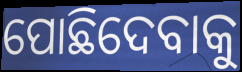
ପୋଛିଦେବାକୁ